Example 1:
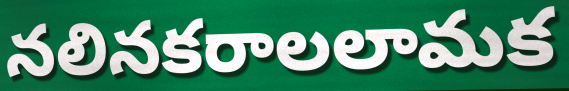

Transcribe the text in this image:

నలినకరాలలామక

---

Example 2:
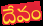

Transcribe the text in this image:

దేవం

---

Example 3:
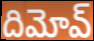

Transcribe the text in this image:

దిమోవ్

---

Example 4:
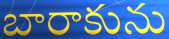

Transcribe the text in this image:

బారాకును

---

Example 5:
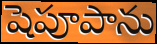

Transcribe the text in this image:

షెపూపాను